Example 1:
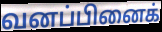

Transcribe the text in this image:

வனப்பினைக்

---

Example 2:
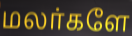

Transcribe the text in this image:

மலர்களே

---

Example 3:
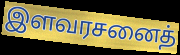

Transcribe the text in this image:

இளவரசனைத்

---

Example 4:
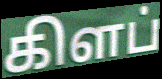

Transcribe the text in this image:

கிளப்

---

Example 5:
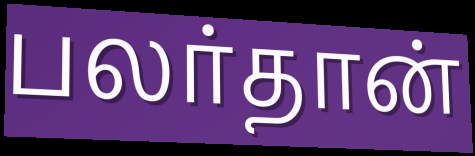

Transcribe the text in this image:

பலர்தான்